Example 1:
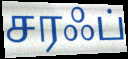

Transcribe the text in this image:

சரஃப்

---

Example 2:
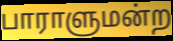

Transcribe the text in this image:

பாராளுமன்ற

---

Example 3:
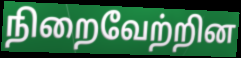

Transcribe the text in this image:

நிறைவேற்றின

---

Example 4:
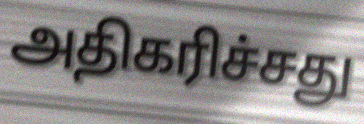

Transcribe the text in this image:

அதிகரிச்சது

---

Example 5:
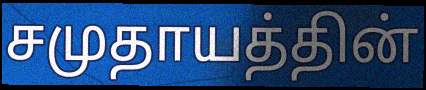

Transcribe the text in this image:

சமுதாயத்தின்